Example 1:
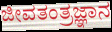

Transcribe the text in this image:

ಜೀವತಂತ್ರಜ್ಞಾನ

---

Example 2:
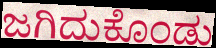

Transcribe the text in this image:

ಜಗಿದುಕೊಂಡು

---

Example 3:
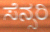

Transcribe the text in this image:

ಸೆನ್ಸರಿ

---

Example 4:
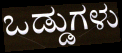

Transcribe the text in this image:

ಒಡ್ಡುಗಳು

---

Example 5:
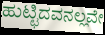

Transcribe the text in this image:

ಹುಟ್ಟಿದವನಲ್ಲವೇ